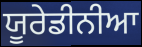
ਯੂਰੇਡੀਨੀਆ